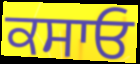
ਕਸਾਓ